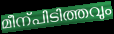
മീന്പിടിത്തവും